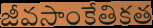
జీవసాంకేతికత